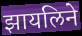
झायलिने